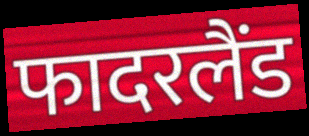
फादरलैंड